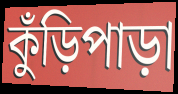
কুঁড়িপাড়া